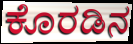
ಕೊರಡಿನ